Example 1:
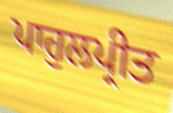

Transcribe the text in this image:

ਪਾਹੁਲਪ੍ਰੀਤ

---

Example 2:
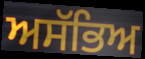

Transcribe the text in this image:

ਅਸੱਭਿਅ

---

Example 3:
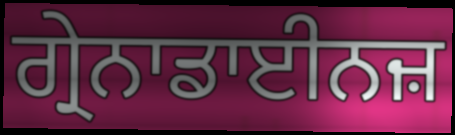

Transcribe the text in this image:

ਗ੍ਰੇਨਾਡਾਈਨਜ਼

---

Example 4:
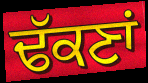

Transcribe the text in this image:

ਢੱਕਣਾਂ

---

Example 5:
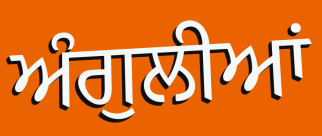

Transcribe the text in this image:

ਅੰਗੁਲੀਆਂ